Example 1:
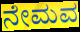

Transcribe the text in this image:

ನೇಮವ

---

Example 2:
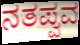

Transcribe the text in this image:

ನತಪ್ವವ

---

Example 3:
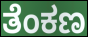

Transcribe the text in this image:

ತೆಂಕಣ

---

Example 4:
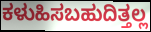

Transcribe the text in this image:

ಕಳುಹಿಸಬಹುದಿತ್ತಲ್ಲ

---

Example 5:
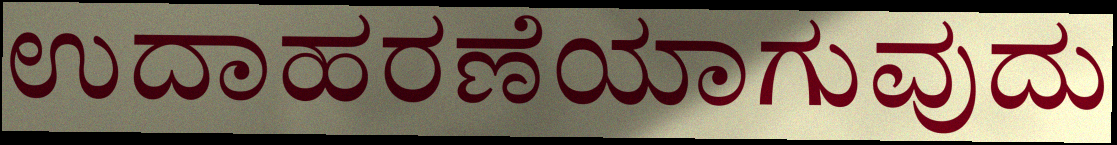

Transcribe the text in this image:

ಉದಾಹರಣೆಯಾಗುವುದು